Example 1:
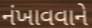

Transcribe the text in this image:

નંખાવવાને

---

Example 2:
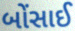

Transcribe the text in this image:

બોંસાઈ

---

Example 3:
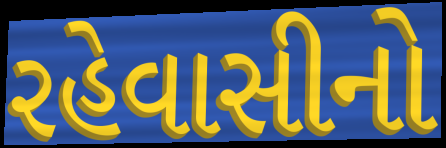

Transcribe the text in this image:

રહેવાસીનો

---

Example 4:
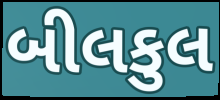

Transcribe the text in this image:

બીલકુલ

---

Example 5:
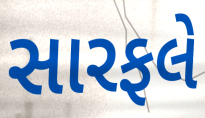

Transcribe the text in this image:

સારફલે